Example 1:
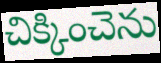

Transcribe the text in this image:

చిక్కించెను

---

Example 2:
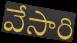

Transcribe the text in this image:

వేసారి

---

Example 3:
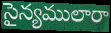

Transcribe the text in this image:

సైన్యములారా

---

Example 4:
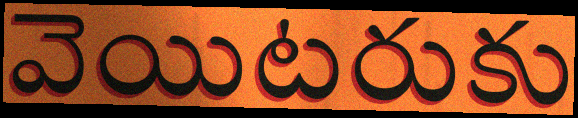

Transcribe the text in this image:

వెయిటరుకు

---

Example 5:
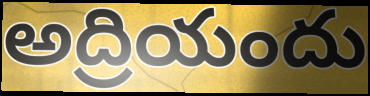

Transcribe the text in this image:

అద్రియందు